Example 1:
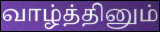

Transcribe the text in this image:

வாழ்த்தினும்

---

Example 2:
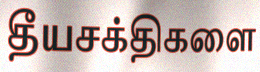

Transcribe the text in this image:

தீயசக்திகளை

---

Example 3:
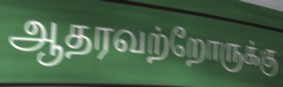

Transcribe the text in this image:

ஆதரவற்றோருக்கு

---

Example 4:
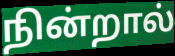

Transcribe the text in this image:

நின்றால்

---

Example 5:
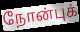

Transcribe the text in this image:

நோன்புக்